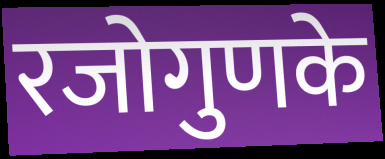
रजोगुणके